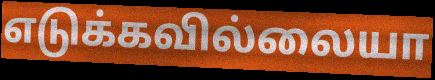
எடுக்கவில்லையா